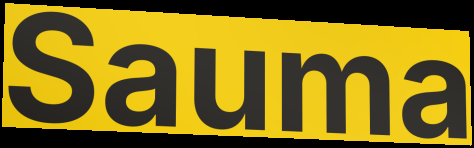
Sauma